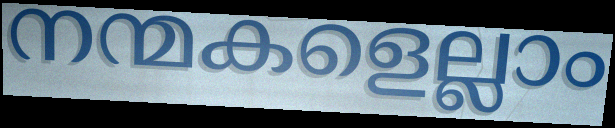
നന്മകളെല്ലാം